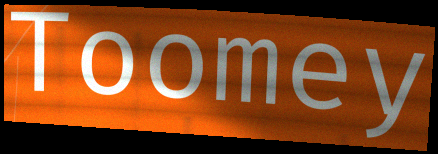
Toomey